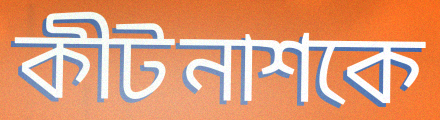
কীটনাশকে